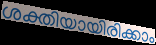
ശക്തിയായിരിക്കാം